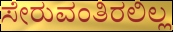
ಸೇರುವಂತಿರಲಿಲ್ಲ